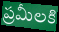
ప్రమీలకి